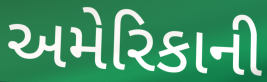
અમેરિકાની